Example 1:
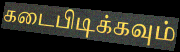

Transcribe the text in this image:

கடைபிடிக்கவும்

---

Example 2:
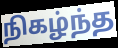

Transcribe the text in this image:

நிகழ்ந்த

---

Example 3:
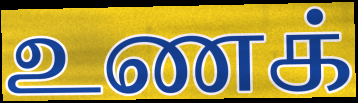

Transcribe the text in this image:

உணக்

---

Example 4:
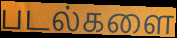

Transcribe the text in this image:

படல்களை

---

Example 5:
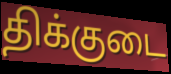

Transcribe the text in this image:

திக்குடை